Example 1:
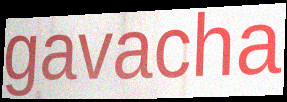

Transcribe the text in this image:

gavacha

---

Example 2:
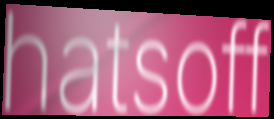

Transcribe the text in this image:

hatsoff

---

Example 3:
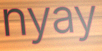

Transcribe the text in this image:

nyay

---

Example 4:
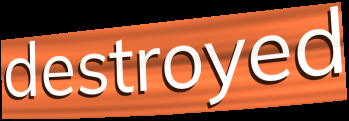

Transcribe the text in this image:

destroyed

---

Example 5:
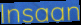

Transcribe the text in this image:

Insaan